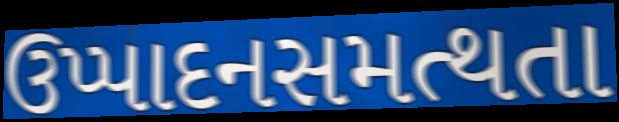
ઉપ્પાદનસમત્થતા